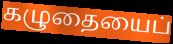
கழுதையைப்